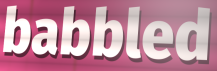
babbled